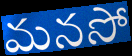
మనసో